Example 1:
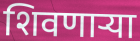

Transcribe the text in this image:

शिवणाऱ्या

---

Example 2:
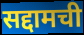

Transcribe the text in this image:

सद्दामची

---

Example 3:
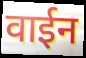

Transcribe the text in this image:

वाईन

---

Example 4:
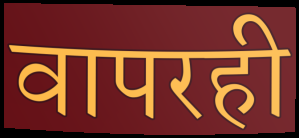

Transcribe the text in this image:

वापरही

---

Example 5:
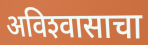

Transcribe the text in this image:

अविश्‍वासाचा